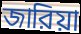
জারিয়া